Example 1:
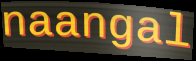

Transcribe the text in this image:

naangal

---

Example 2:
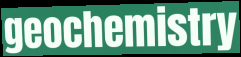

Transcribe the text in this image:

geochemistry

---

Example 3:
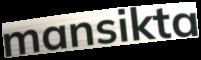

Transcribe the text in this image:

mansikta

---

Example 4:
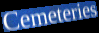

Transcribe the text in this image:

Cemeteries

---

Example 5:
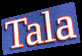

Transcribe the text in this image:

Tala